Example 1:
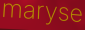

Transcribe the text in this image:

maryse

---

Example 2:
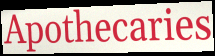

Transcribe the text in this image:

Apothecaries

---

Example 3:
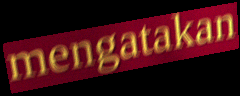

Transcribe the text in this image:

mengatakan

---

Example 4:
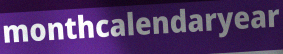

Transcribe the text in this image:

monthcalendaryear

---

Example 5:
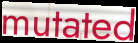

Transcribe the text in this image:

mutated